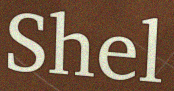
Shel